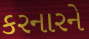
કરનારને